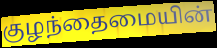
குழந்தைமையின்